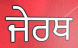
ਜੇਰਥ